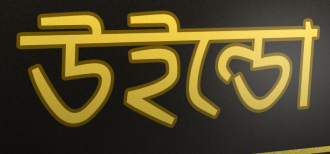
উইন্ডো